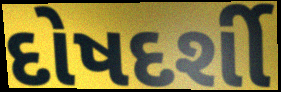
દોષદર્શી